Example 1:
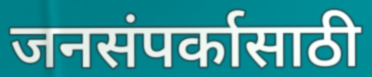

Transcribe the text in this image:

जनसंपर्कासाठी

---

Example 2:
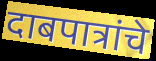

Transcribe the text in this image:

दाबपात्रांचे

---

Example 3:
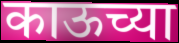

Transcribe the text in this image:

काऊच्या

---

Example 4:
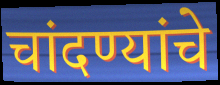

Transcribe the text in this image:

चांदण्यांचे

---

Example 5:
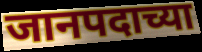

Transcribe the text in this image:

जानपदाच्या